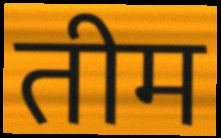
तीम